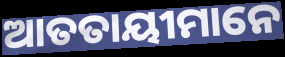
ଆତତାୟୀମାନେ